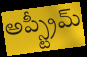
అప్స్ట్రీమ్